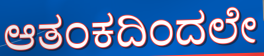
ಆತಂಕದಿಂದಲೇ